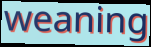
weaning